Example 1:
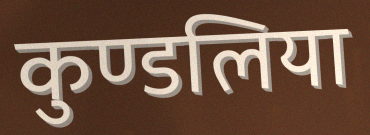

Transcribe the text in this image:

कुण्डलिया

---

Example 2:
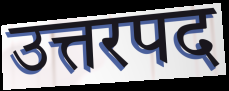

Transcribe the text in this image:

उत्तरपद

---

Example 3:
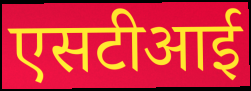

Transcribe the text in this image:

एसटीआई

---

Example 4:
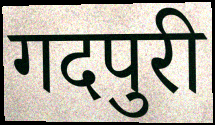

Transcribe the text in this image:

गदपुरी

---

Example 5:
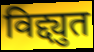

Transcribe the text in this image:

विद्द्युत